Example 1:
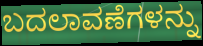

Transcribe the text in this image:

ಬದಲಾವಣೆಗಳನ್ನು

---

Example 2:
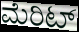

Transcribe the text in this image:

ಮೆರಿಟ್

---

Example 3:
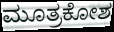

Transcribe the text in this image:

ಮೂತ್ರಕೋಶ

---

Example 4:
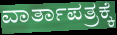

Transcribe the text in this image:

ವಾರ್ತಾಪತ್ರಕ್ಕೆ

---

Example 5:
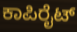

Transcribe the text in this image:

ಕಾಪಿರೈಟ್